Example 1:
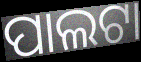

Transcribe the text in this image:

ପାଲଟା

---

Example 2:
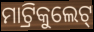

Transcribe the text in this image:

ମାଟ୍ରିକୁଲେଟ୍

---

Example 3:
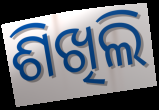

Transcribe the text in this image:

ଶିଖିଲି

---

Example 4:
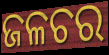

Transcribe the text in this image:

ଜଳଚର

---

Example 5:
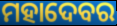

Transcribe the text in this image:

ମହାଦେବର